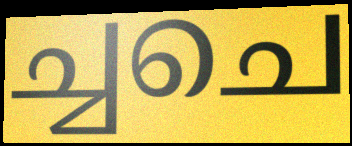
ച്ചചെ